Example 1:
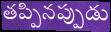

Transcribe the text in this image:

తప్పినప్పుడు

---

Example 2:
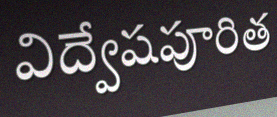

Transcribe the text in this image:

విద్వేషపూరిత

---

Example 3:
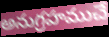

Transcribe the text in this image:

అనుగ్రహముచే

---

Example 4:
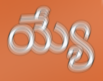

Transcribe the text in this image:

య్యే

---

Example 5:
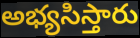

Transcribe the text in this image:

అభ్యసిస్తారు